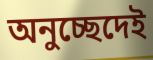
অনুচ্ছেদেই